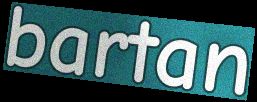
bartan